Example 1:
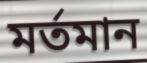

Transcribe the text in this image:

মর্তমান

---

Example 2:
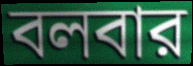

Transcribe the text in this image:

বলবার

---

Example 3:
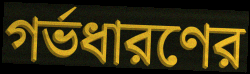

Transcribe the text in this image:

গর্ভধারণের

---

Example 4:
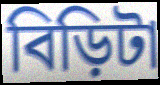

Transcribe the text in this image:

বিড়িটা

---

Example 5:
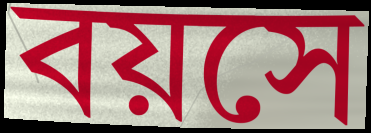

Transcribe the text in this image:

বয়সে